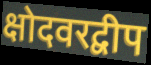
क्षोदवरद्वीप